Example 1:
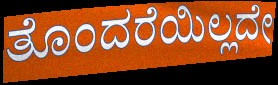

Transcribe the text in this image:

ತೊಂದರೆಯಿಲ್ಲದೇ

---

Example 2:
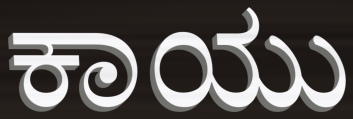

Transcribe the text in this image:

ಕಾಯು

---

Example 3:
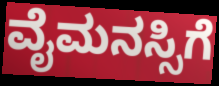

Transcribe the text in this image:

ವೈಮನಸ್ಸಿಗೆ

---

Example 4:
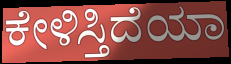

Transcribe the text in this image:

ಕೇಳಿಸ್ತಿದೆಯಾ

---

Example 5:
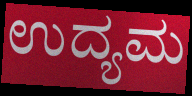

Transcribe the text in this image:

ಉದ್ಯಮ